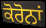
ਕੋਰੋਨਾਂ